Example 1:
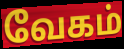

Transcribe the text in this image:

வேகம்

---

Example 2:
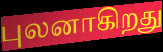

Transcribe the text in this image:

புலனாகிறது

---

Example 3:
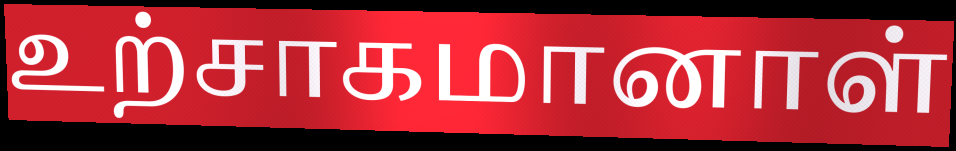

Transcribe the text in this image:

உற்சாகமானாள்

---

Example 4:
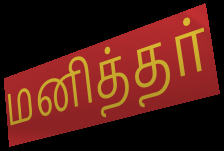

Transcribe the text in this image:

மனித்தர்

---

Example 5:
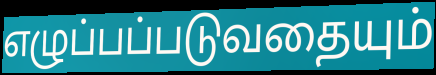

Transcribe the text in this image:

எழுப்பப்படுவதையும்